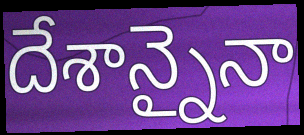
దేశాన్నైనా